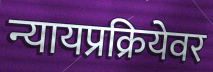
न्यायप्रक्रियेवर